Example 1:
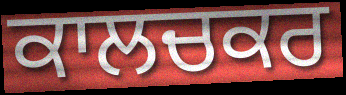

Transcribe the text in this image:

ਕਾਲਚਕਰ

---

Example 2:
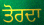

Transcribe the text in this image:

ਤੋਰਦਾ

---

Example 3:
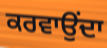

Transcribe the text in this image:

ਕਰਵਾਉਂਦਾ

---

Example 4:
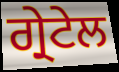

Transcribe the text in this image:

ਗ੍ਰੇਟੇਲ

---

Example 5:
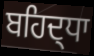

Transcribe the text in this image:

ਬਹਿਦ੍ਧਾ